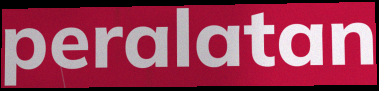
peralatan